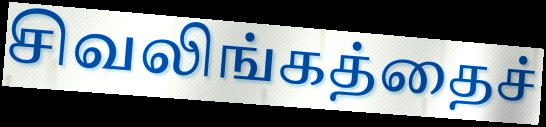
சிவலிங்கத்தைச்